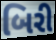
બિરી